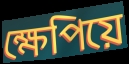
ক্ষেপিয়ে